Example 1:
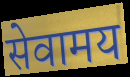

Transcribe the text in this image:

सेवामय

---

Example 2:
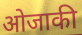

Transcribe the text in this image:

ओजाकी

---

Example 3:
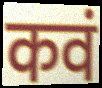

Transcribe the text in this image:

कवं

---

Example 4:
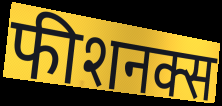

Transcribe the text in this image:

फीशनक्स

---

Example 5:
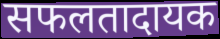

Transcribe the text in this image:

सफलतादायक